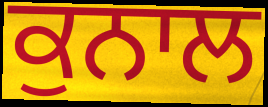
ਕੁਨਾਲ